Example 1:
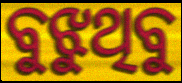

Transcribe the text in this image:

ବୁଝୁଥିବୁ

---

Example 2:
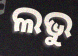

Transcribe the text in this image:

ଲଭୁ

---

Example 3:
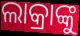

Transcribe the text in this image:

ଲାକ୍ରାଙ୍କୁ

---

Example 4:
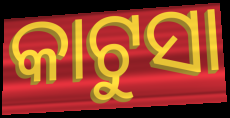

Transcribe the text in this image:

କାଟୁସା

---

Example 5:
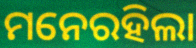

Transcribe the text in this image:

ମନେରହିଲା